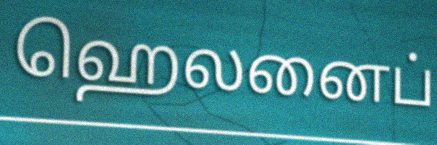
ஹெலனைப்